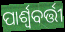
ପାର୍ଶ୍ୱବର୍ତ୍ତୀ